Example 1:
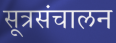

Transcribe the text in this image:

सूत्रसंचालन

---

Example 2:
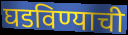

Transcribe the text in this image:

घडविण्याची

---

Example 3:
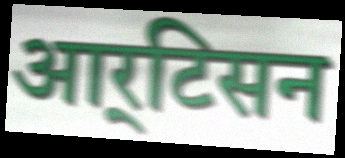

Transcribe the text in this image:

आर्टिसन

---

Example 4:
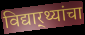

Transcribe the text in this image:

विद्यार्थ्यांचा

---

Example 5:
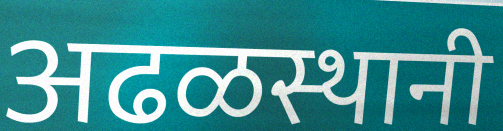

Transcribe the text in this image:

अढळस्थानी